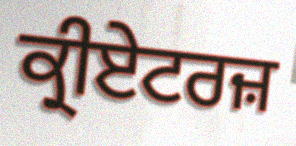
ਕ੍ਰੀਏਟਰਜ਼